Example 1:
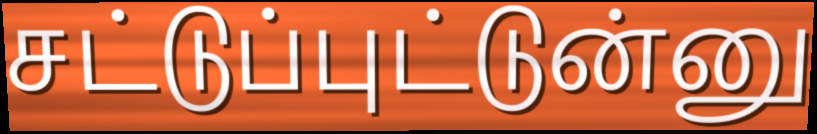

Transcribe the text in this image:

சட்டுப்புட்டுன்னு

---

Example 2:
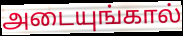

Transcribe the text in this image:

அடையுங்கால்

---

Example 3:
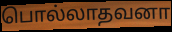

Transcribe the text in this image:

பொல்லாதவனா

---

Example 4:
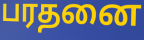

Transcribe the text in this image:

பரதனை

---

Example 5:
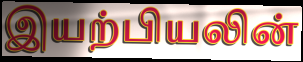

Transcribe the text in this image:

இயற்பியலின்